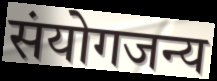
संयोगजन्य